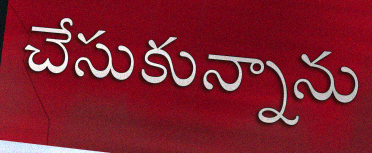
చేసుకున్నాను